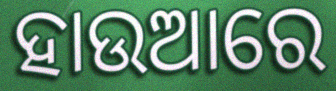
ହାଉଆରେ